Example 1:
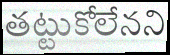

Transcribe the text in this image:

తట్టుకోలేనని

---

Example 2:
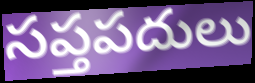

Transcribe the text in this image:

సప్తపదులు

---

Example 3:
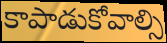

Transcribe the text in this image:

కాపాడుకోవాల్సి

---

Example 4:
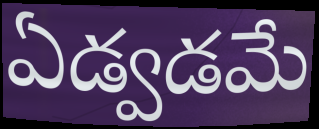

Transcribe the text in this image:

ఏడ్వడమే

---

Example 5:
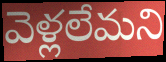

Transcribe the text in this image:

వెళ్లలేమని